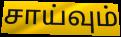
சாய்வும்